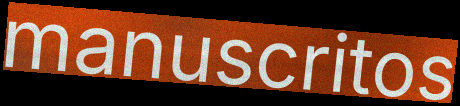
manuscritos